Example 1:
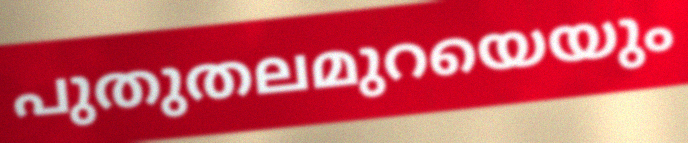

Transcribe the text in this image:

പുതുതലമുറയെയും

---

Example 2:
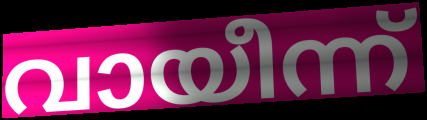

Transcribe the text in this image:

വായീന്ന്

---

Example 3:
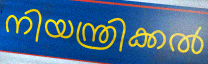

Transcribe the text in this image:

നിയന്ത്രിക്കൽ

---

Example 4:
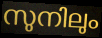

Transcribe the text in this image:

സുനിലും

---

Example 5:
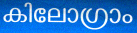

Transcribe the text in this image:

കിലോഗ്രാം